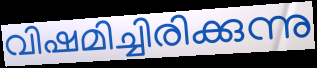
വിഷമിച്ചിരിക്കുന്നു